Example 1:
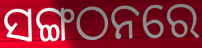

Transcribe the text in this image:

ସଙ୍ଗଠନରେ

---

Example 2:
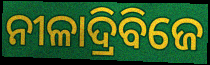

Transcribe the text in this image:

ନୀଳାଦ୍ରିବିଜେ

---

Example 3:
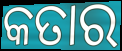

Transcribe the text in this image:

କତାର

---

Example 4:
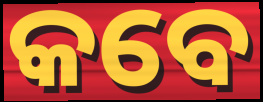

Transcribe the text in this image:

କବେ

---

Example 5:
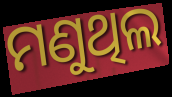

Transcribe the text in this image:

ମଣୁଥିଲ